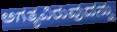
ಅಗತ್ಯವಿರುವುದನ್ನು